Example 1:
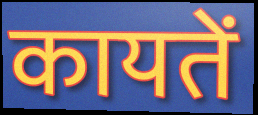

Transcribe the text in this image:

कायतें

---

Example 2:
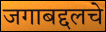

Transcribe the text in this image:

जगाबद्दलचे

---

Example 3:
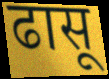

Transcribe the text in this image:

ढासू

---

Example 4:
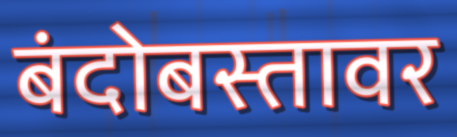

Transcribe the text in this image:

बंदोबस्तावर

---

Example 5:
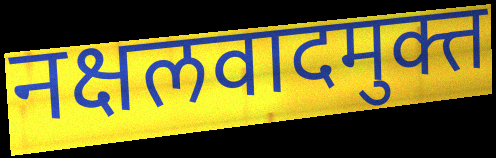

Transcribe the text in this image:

नक्षलवादमुक्त